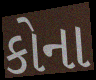
કોના